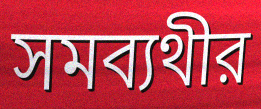
সমব্যথীর